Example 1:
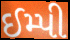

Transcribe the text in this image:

ઈમ્પી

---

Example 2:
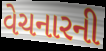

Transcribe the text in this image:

વેચનારની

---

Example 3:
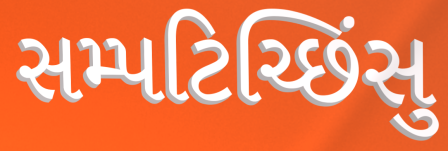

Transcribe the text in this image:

સમ્પટિચ્છિંસુ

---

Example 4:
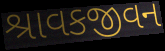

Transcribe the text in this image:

શ્રાવકજીવન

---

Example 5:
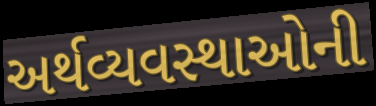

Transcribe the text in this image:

અર્થવ્યવસ્થાઓની